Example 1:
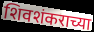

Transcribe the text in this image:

शिवशंकराच्या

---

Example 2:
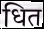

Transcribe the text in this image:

धित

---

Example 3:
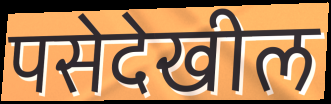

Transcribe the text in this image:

पसेदेखील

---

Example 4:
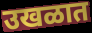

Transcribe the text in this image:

उखळात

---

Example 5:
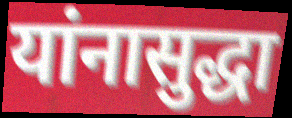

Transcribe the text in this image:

यांनासुद्धा